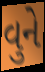
વુને